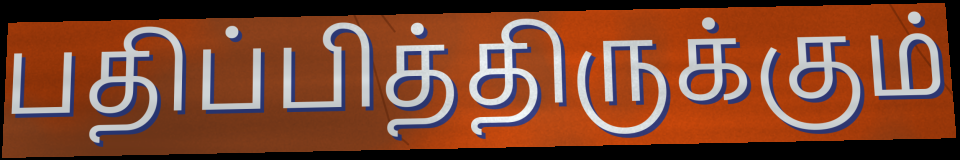
பதிப்பித்திருக்கும்